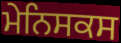
ਮੇਨਿਸਕਸ